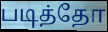
படித்தோ